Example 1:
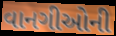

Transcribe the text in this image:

વાનગીઓની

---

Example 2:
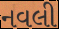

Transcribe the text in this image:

નવલી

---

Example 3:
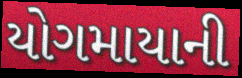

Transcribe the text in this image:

યોગમાયાની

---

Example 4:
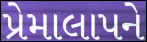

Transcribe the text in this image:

પ્રેમાલાપને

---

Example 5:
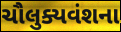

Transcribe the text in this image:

ચૌલુક્યવંશના